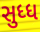
સુધ્ધ